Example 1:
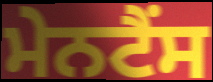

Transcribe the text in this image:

ਮੇਨਟੈਂਸ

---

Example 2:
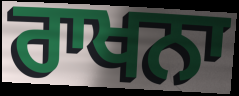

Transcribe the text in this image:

ਰਾਖਨਾ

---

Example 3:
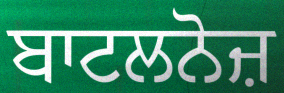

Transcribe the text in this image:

ਬਾਟਲਨੋਜ਼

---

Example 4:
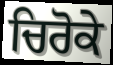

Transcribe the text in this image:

ਚਿਰੋਕੇ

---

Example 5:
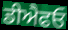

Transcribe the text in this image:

ਡੀਐਫਓ